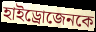
হাইড্রোজেনকে